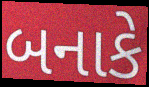
બનાકે